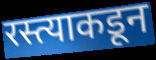
रस्त्याकडून